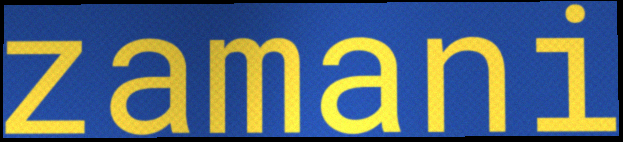
zamani